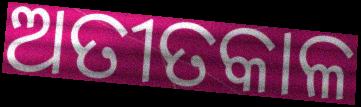
ଅତୀତକାଳ